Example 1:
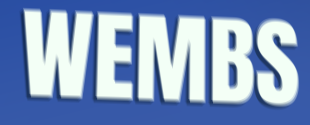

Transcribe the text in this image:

WEMBS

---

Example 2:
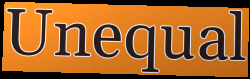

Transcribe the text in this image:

Unequal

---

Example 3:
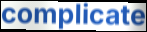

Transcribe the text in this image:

complicate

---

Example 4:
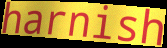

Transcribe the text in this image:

harnish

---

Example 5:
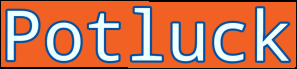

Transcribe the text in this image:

Potluck